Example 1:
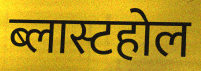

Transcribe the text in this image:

ब्लास्टहोल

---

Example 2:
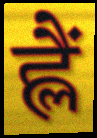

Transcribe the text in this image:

ह्लैं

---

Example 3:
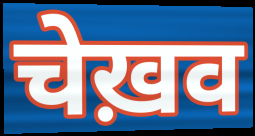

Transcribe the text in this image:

चेख़व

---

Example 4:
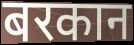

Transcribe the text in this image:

बरकान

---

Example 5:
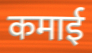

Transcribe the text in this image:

कमाई